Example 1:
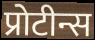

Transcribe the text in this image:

प्रोटीन्स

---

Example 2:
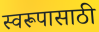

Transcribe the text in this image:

स्वरूपासाठी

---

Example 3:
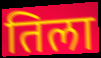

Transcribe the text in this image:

तिला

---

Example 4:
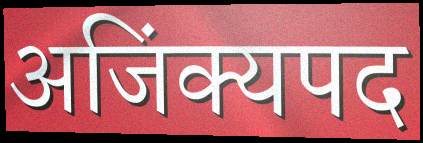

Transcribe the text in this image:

अजिंक्यपद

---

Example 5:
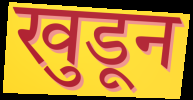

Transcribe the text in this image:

खुडून